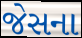
જેસના